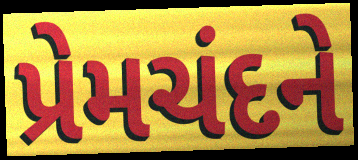
પ્રેમચંદને